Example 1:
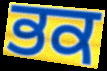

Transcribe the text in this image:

ਭਕ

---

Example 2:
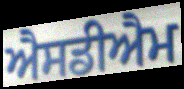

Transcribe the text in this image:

ਐਸਡੀਐਮ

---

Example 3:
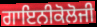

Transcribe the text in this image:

ਗਾਇਨੀਕੋਲੋਜੀ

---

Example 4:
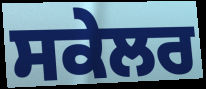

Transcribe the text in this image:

ਸਕੇਲਰ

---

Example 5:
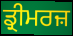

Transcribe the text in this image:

ਡ੍ਰੀਮਰਜ਼